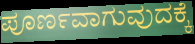
ಪೂರ್ಣವಾಗುವುದಕ್ಕೆ